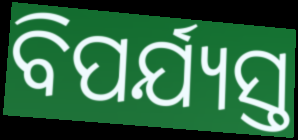
ବିପର୍ଯ୍ୟସ୍ତ